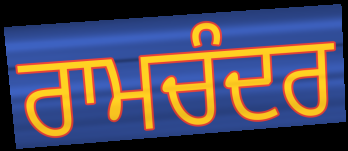
ਰਾਮਚੰਦਰ